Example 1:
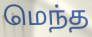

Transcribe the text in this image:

மெந்த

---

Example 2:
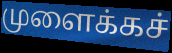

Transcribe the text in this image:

முளைக்கச்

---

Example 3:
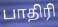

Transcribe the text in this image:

பாதிரி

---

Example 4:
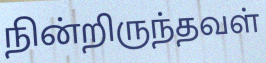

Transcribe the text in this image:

நின்றிருந்தவள்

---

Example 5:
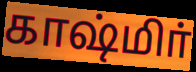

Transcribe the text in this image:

காஷ்மிர்